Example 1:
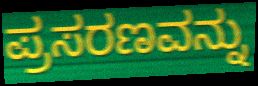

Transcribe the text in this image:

ಪ್ರಸರಣವನ್ನು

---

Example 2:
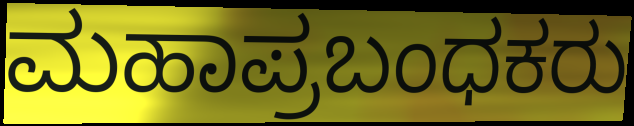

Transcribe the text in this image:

ಮಹಾಪ್ರಬಂಧಕರು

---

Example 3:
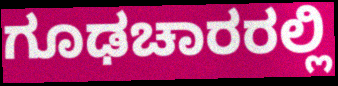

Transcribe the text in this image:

ಗೂಢಚಾರರಲ್ಲಿ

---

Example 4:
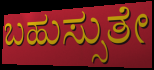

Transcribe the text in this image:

ಬಹುಸ್ಸುತೇ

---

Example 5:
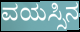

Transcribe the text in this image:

ವಯಸ್ಸಿನ